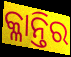
କ୍ଳାନ୍ତିର